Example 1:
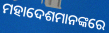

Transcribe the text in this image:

ମହାଦେଶମାନଙ୍କରେ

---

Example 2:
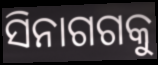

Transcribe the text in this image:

ସିନାଗଗକୁ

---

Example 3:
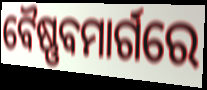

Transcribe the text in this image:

ବୈଷ୍ଣବମାର୍ଗରେ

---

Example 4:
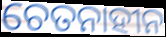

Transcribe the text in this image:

ଚେତନାହୀନ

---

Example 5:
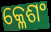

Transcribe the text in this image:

କ୍ଳେଶଂ